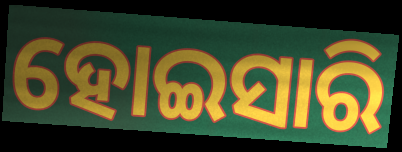
ହୋଇସାରି